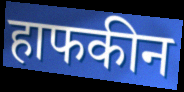
हाफकीन